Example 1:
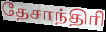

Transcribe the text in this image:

தேசாந்திரி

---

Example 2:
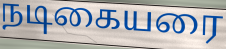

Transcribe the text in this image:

நடிகையரை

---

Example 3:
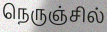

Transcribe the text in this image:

நெருஞ்சில்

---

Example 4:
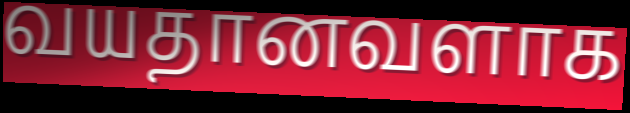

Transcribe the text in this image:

வயதானவளாக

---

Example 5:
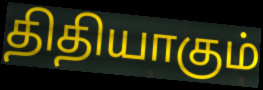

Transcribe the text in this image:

திதியாகும்